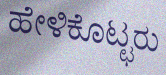
ಹೇಳಿಕೊಟ್ಟರು